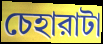
চেহারাটা